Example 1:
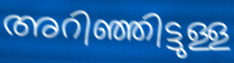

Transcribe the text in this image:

അറിഞ്ഞിട്ടുള്ള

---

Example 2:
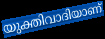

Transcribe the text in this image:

യുക്തിവാദിയാണ്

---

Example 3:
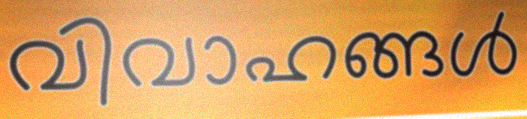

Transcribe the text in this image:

വിവാഹങ്ങൾ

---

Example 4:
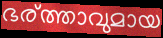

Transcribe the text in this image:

ഭര്ത്താവുമായ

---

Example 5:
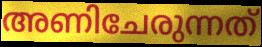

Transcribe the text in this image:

അണിചേരുന്നത്